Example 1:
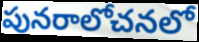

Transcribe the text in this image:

పునరాలోచనలో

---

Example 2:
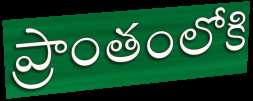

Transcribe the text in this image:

ప్రాంతంలోకి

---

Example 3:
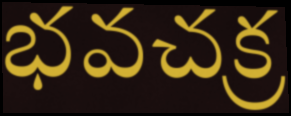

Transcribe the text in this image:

భవచక్ర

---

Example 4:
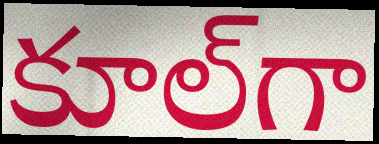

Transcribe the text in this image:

కూల్‌గా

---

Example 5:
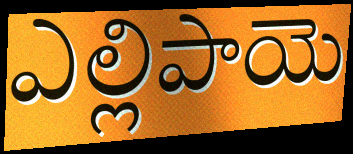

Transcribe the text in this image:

ఎల్లిపాయె